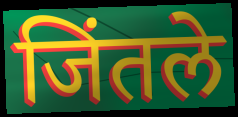
जिंतले